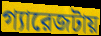
গ্যারেজটায়